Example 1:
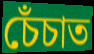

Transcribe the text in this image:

চেঁচাত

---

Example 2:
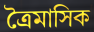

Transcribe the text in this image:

ত্রৈমাসিক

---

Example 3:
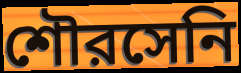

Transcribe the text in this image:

শৌরসেনি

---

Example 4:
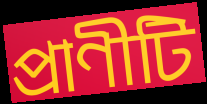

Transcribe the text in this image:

প্রাণীটি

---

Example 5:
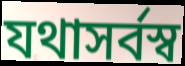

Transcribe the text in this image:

যথাসর্বস্ব